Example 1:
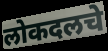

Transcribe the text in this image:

लोकदलचे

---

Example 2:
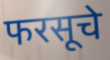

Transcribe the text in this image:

फरसूचे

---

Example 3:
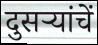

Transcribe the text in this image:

दुसऱ्यांचें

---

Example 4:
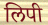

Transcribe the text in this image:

लिपी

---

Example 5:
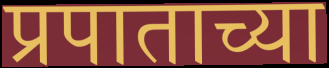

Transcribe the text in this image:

प्रपाताच्या